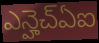
ఎన్హెచ్ఏఐ